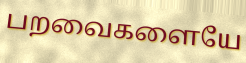
பறவைகளையே